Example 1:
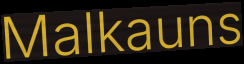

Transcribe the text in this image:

Malkauns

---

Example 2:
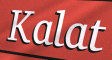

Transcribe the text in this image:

Kalat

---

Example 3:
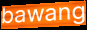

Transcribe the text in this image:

bawang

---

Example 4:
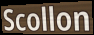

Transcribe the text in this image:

Scollon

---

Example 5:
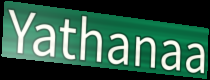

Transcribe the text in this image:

Yathanaa